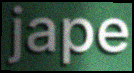
jape